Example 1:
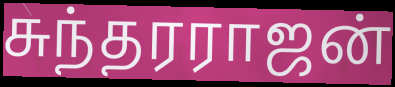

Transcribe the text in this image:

சுந்தரராஜன்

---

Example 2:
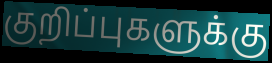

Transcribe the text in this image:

குறிப்புகளுக்கு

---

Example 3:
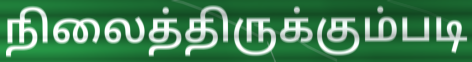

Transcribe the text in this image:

நிலைத்திருக்கும்படி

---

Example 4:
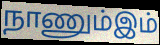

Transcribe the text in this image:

நாணும்இம்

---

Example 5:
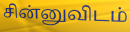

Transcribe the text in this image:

சின்னுவிடம்